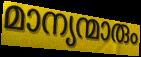
മാന്യന്മാരും